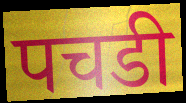
पचडी